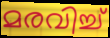
മരവിച്ച്